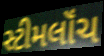
સ્ટીમલૉંચ